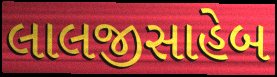
લાલજીસાહેબ